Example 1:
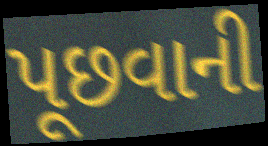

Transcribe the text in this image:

પૂછવાની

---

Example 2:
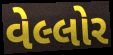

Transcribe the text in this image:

વેલ્લોર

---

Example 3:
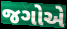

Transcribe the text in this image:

જગોએ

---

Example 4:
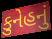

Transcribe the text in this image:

કુનેહનું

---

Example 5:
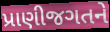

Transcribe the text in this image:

પ્રાણીજગતને